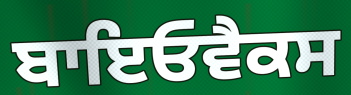
ਬਾਇਓਵੈਕਸ